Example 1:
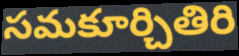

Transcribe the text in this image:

సమకూర్చితిరి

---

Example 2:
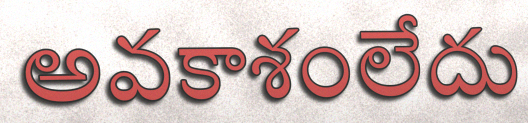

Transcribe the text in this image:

అవకాశంలేదు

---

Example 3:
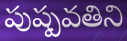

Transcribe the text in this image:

పుష్పవతిని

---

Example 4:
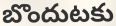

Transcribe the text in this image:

బొందుటకు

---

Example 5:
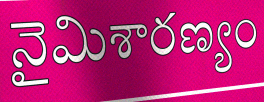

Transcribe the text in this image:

నైమిశారణ్యం